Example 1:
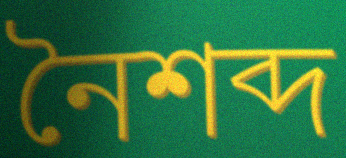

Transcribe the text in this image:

নৈশব্দ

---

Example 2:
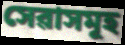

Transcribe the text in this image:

সেৱাসমূহ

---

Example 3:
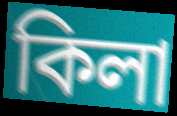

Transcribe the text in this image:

কিলা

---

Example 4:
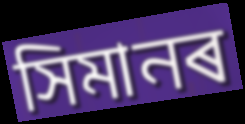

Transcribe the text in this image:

সিমানৰ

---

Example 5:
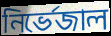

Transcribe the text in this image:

নিৰ্ভেজাল